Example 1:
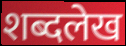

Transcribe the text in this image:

शब्दलेख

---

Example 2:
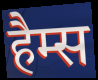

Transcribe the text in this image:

हैम्स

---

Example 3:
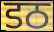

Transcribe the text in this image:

डठ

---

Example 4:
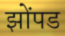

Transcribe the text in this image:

झोंपड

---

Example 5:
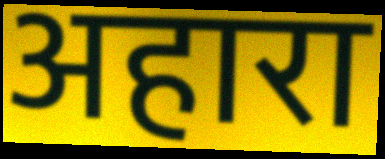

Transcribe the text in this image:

अहारा